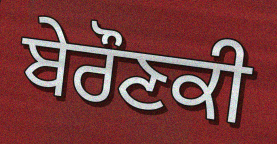
ਬੇਰੌਣਕੀ